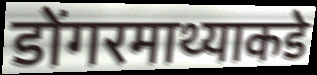
डोंगरमाथ्याकडे